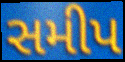
સમીપ